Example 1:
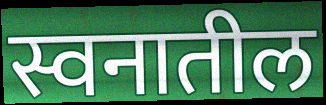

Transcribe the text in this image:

स्वनातील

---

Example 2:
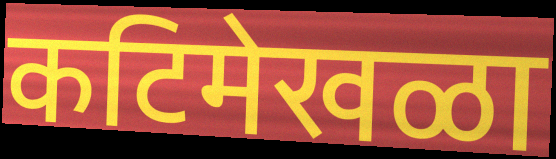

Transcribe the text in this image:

कटिमेखळा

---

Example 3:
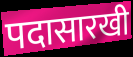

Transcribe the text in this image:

पदासारखी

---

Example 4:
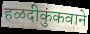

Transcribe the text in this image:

हळदीकुंकवाने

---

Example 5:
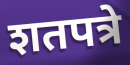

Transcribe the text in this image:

शतपत्रे